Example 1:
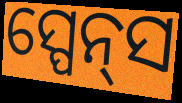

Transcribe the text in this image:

ସ୍ପେନ୍‌ସ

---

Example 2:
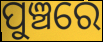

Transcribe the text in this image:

ପୁଞ୍ଚରେ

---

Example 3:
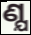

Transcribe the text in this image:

ଣ୍ଯ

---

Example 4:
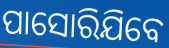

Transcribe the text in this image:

ପାସୋରିଯିବେ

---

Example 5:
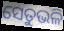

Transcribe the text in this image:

ସେତୁଭଳି